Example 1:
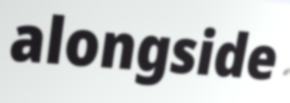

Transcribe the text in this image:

alongside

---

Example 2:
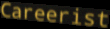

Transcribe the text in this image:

Careerist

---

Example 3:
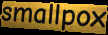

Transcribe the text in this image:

smallpox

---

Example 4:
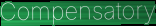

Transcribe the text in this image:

Compensatory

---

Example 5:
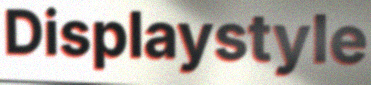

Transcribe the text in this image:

Displaystyle